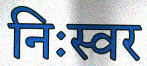
निःस्वर